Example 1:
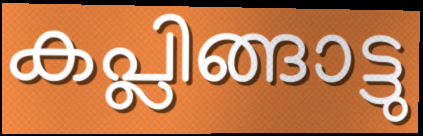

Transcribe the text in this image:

കപ്ലിങ്ങാട്ടു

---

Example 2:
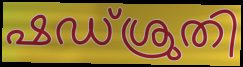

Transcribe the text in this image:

ഷഡ്ശ്രുതി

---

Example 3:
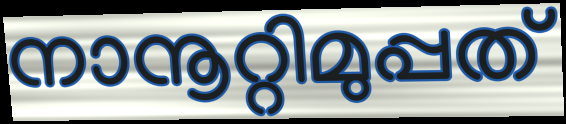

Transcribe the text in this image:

നാനൂറ്റിമുപ്പത്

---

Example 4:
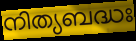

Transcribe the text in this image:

നിത്യബദ്ധഃ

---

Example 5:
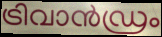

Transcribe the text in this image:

ട്രിവാൻഡ്രം